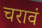
चरावं